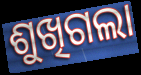
ଶୁଖିଗଲା